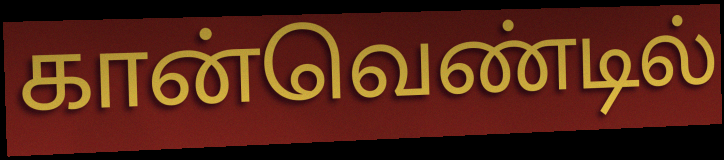
கான்வெண்டில்